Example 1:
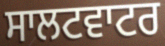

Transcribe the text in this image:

ਸਾਲਟਵਾਟਰ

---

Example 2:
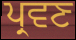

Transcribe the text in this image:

ਪ੍ਰਵਣ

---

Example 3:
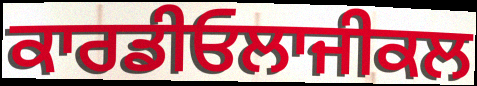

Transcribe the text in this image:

ਕਾਰਡੀਓਲਾਜੀਕਲ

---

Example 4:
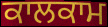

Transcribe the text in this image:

ਕਾਲਕਾਮ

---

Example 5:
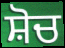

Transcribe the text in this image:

ਸ਼ੋਚ